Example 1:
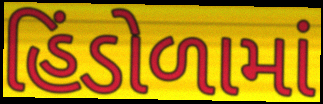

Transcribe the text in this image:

હિંડોળામાં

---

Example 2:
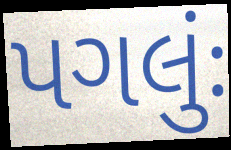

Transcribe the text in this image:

પગલુંઃ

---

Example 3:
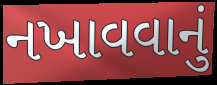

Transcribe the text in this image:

નખાવવાનું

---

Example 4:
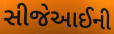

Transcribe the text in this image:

સીજેઆઈની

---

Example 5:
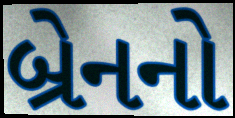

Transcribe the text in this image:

બ્રેનનો